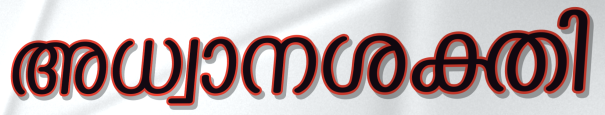
അധ്വാനശക്തി